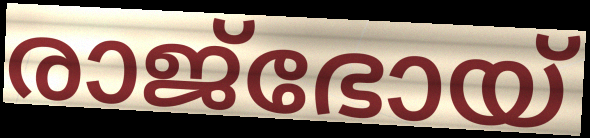
രാജ്ഭോയ്